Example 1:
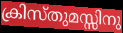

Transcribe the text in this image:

ക്രിസ്തുമസ്സിനു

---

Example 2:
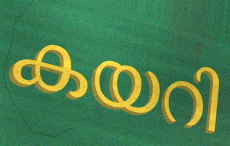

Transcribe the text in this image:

കയറി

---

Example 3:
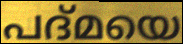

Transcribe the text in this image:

പദ്മയെ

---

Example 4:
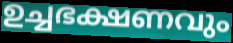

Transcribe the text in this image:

ഉച്ചഭക്ഷണവും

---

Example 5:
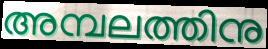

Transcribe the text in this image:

അമ്പലത്തിനു